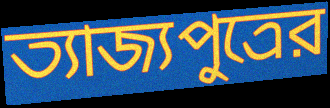
ত্যাজ্যপুত্রের